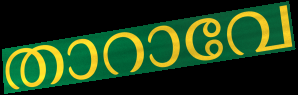
താറാവേ